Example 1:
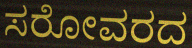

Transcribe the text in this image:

ಸರೋವರದ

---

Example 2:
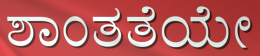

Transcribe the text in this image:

ಶಾಂತತೆಯೇ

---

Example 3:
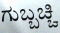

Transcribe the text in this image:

ಗುಬ್ಬಚ್ಚಿ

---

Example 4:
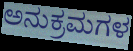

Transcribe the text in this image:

ಅನುಕ್ರಮಗಳ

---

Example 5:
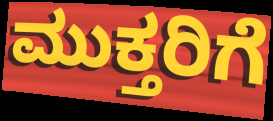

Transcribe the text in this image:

ಮುಕ್ತರಿಗೆ